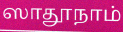
ஸாதூநாம்